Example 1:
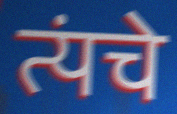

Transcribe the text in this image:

त्यंचे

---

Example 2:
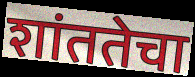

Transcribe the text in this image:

शांततेचा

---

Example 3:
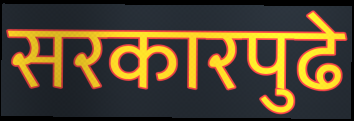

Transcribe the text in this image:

सरकारपुढे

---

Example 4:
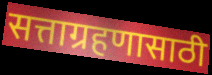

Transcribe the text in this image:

सत्ताग्रहणासाठी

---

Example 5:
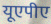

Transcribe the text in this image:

यूएपीए